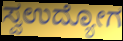
ಸ್ವಉದ್ಯೋಗ